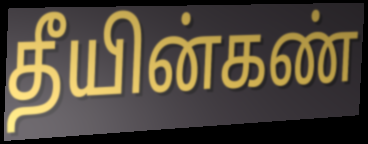
தீயின்கண்